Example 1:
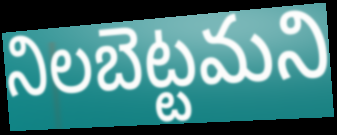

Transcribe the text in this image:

నిలబెట్టమని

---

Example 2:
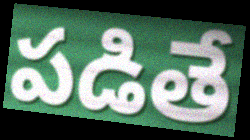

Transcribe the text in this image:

పడితే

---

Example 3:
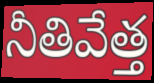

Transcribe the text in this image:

నీతివేత్త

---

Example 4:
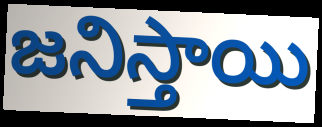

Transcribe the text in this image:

జనిస్తాయి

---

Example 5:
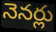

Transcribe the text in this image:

నెనర్లు